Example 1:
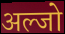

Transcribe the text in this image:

अल्जो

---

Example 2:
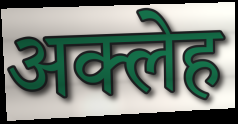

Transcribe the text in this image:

अक्लेह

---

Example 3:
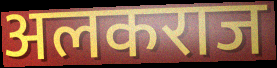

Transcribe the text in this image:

अलकराज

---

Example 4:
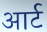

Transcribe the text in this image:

आर्ट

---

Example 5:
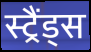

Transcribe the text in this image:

स्ट्रैंड्स